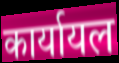
कार्यायल